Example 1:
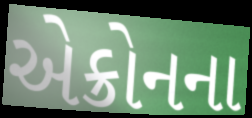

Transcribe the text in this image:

એક્રોનના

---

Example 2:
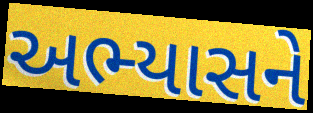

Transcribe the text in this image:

અભ્યાસને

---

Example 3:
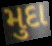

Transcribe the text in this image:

મુદા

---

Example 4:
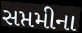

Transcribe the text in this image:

સપ્તમીના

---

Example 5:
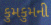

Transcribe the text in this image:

કુમકુમની